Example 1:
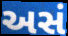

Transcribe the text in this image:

અસં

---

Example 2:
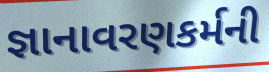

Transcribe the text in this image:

જ્ઞાનાવરણકર્મની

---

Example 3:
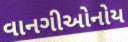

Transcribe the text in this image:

વાનગીઓનોય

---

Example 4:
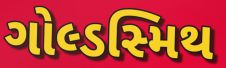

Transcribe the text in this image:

ગોલ્ડસ્મિથ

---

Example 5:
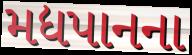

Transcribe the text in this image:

મદ્યપાનના